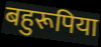
बहुरूपिया